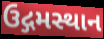
ઉદ્ગમસ્થાન